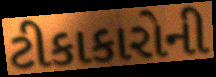
ટીકાકારોની